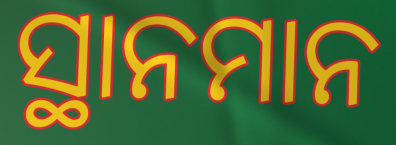
ସ୍ଥାନମାନ